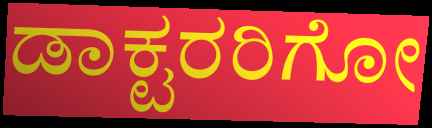
ಡಾಕ್ಟರರಿಗೋ